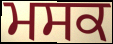
ਮਸਕ